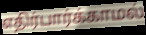
எதிர்பார்க்காமல்